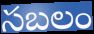
సబలం